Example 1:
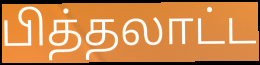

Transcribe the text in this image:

பித்தலாட்ட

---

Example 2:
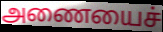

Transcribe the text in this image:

அணையைச்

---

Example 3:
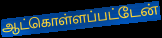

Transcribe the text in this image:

ஆட்கொள்ளப்பட்டேன்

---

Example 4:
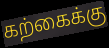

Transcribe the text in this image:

கற்கைக்கு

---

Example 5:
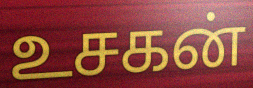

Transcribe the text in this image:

உசகன்